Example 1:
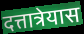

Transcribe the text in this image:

दत्तात्रेयास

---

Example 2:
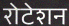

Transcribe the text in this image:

रोटेशन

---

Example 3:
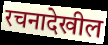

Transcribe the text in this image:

रचनादेखील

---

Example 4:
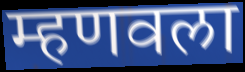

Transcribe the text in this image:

म्हणवला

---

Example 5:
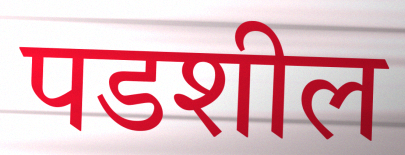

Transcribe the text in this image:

पडशील